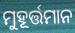
ମୁହୂର୍ତ୍ତମାନ